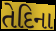
તેદિના